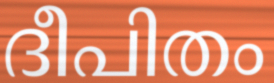
ദീപിതം